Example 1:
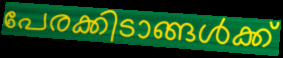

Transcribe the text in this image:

പേരക്കിടാങ്ങൾക്ക്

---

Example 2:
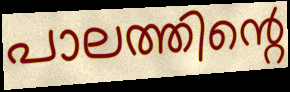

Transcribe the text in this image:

പാലത്തിന്റെ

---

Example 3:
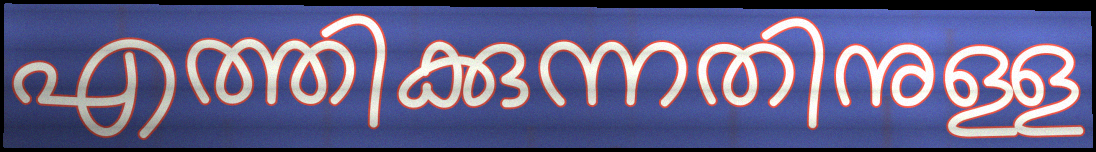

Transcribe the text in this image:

എത്തിക്കുന്നതിനുള്ള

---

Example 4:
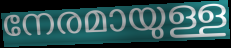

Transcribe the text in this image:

നേരമായുള്ള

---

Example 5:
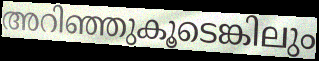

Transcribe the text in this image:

അറിഞ്ഞുകൂടെങ്കിലും